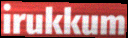
irukkum